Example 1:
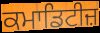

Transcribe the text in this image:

ਕਮਾਡਿਟੀਜ਼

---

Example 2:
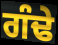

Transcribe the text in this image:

ਗੰਢੇ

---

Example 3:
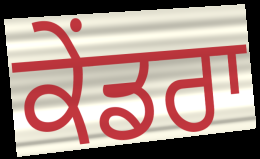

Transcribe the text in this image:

ਕੇਂਡਰਾ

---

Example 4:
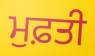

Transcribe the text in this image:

ਮੁਫ਼ਤੀ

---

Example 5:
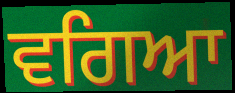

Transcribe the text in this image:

ਵਗਿਆ